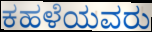
ಕಹಳೆಯವರು